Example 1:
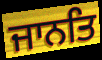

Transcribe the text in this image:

ਜਾਨਤਿ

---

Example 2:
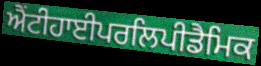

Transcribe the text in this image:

ਐਂਟੀਹਾਈਪਰਲਿਪੀਡੈਮਿਕ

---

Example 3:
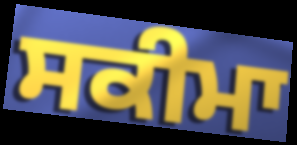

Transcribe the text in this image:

ਸਕੀਮਾ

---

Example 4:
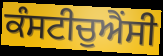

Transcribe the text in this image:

ਕੰਸਟੀਚੁਐਂਸੀ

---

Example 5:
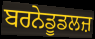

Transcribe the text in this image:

ਬਰਨੇਡੂਡਲਜ਼